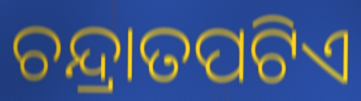
ଚନ୍ଦ୍ରାତପଟିଏ